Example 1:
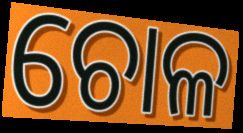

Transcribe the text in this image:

ଚୋଳ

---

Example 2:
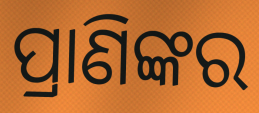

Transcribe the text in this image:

ପ୍ରାଣିଙ୍କର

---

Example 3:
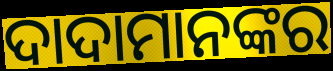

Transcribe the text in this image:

ଦାଦାମାନଙ୍କର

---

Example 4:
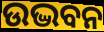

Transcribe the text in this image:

ଉଦ୍ଭବନ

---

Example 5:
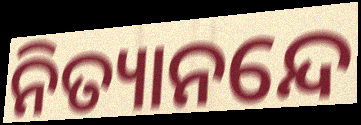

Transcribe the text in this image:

ନିତ୍ୟାନନ୍ଦେ